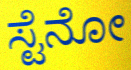
ಸ್ಟೆನೋ